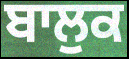
ਬਾਲੁਕ